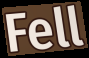
Fell